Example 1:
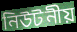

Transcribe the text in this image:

নিউটনীয়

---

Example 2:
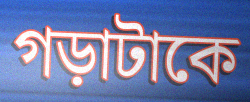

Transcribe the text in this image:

গড়াটাকে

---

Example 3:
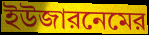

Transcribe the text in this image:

ইউজারনেমের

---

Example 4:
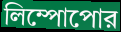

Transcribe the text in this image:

লিম্পোপোর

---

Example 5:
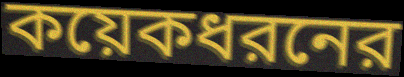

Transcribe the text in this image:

কয়েকধরনের